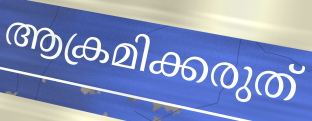
ആക്രമിക്കരുത്